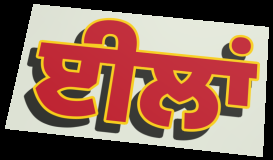
ਈਲਾਂ